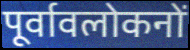
पूर्वावलोकनों